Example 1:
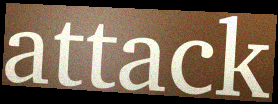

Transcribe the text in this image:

attack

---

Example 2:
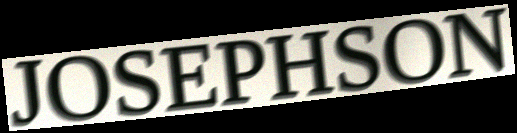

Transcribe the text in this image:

JOSEPHSON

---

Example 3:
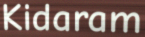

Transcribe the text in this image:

Kidaram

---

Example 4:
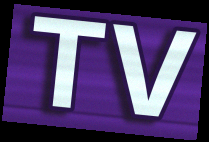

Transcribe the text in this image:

TV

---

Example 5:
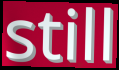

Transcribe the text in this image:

still